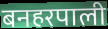
बनहरपाली